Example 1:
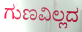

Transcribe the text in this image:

ಗುಣವಿಲ್ಲದ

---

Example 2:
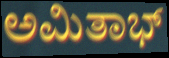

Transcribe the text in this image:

ಅಮಿತಾಭ್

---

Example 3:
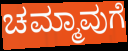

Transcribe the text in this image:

ಚಮ್ಮಾವುಗೆ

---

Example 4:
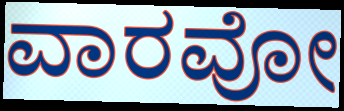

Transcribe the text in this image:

ವಾರವೋ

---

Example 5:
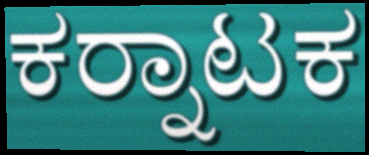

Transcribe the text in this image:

ಕರ‍್ನಾಟಕ